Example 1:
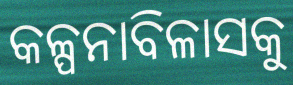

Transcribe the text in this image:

କଳ୍ପନାବିଳାସକୁ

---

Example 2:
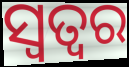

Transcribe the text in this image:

ସ୍ୱତ୍ୱର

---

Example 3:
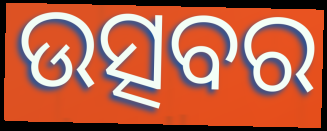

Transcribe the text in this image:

ଉତ୍ସବର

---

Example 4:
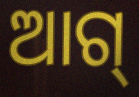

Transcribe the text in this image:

ଆଗ୍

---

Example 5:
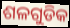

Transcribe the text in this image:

ଶଳଗୁଡିକ